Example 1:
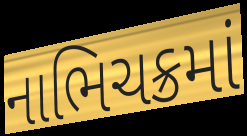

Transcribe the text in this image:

નાભિચક્રમાં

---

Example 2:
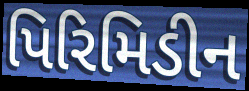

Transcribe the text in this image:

પિરિમિડીન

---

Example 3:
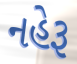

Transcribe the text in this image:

નહેરૂ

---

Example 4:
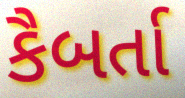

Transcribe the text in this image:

કૈબર્તા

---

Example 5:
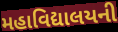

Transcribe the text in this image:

મહાવિદ્યાલયની